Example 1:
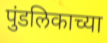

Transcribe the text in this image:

पुंडलिकाच्या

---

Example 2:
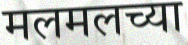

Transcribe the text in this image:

मलमलच्या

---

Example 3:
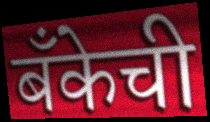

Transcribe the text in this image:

बँकेची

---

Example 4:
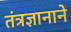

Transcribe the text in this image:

तंत्रज्ञानाने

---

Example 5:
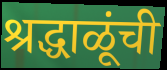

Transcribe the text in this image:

श्रद्धाळूंची